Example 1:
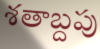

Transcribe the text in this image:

శతాబ్దపు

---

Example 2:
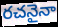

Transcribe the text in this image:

రచనైనా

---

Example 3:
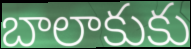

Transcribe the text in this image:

బాలాకుకు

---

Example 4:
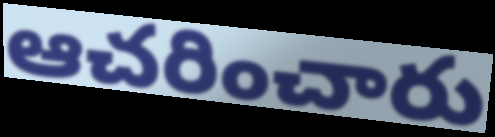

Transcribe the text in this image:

ఆచరించారు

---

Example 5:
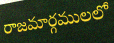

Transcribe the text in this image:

రాజమార్గములలో